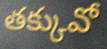
తక్కువో